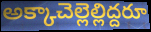
అక్కాచెల్లెల్లిద్దరూ